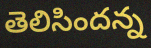
తెలిసిందన్న